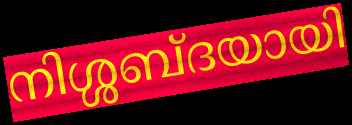
നിശ്ശബ്ദയായി